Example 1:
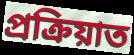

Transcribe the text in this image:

প্ৰক্ৰিয়াত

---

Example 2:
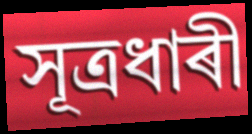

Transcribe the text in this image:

সূত্ৰধাৰী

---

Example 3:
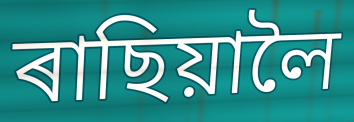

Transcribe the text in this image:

ৰাছিয়ালৈ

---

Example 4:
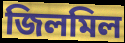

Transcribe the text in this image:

জিলমিল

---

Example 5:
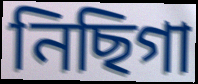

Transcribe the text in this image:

নিছিগা